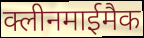
क्लीनमाईमैक